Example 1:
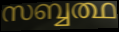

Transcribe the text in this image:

സബ്ബത്ഥ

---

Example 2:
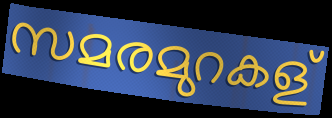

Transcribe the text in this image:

സമരമുറകള്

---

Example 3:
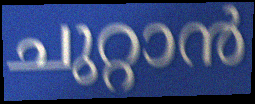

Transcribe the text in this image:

ചുറ്റാൻ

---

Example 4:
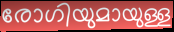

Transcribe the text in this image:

രോഗിയുമായുള്ള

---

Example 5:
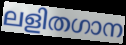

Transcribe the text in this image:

ലളിതഗാന